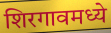
शिरगावमध्ये